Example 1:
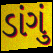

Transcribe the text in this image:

ડાંગું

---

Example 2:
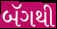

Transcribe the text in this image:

બૅગથી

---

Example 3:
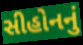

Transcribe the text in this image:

સીહોનનું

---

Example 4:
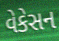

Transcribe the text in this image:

વેકેસન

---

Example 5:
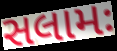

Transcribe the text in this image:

સલામઃ